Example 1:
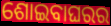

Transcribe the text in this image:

ଶୋଇବାଘରର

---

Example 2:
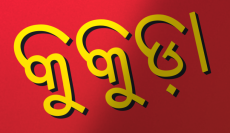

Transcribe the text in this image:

କୁକୁଡ଼ା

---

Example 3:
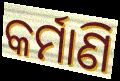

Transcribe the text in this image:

କର୍ମାଣି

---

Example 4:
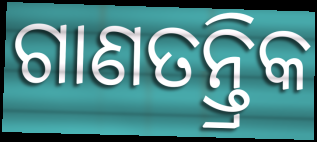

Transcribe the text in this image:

ଗାଣତନ୍ତ୍ରିକ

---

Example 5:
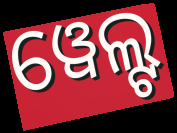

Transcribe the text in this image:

ୱେଲ୍ଟ